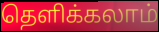
தெளிக்கலாம்